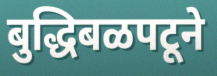
बुद्धिबळपटूने